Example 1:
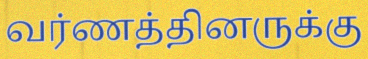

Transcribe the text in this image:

வர்ணத்தினருக்கு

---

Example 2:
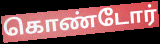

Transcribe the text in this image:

கொண்டோர்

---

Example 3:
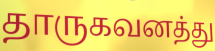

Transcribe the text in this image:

தாருகவனத்து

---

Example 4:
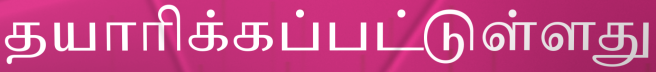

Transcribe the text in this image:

தயாரிக்கப்பட்டுள்ளது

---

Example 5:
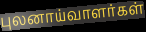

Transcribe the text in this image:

புலனாய்வாளர்கள்